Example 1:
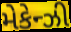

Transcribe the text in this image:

મેકેન્ઝી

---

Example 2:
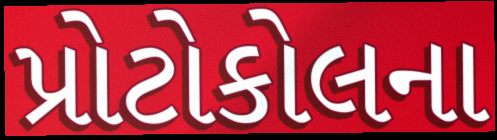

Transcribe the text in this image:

પ્રોટોકોલના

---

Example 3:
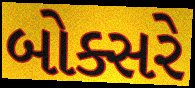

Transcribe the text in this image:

બોક્સરે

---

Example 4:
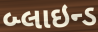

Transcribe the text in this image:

બ્લાઇન્ડ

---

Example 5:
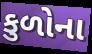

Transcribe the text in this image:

કુળોના